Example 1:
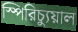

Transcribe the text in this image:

স্পিরিচ্যুয়াল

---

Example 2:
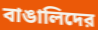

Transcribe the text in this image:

বাঙালিদের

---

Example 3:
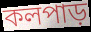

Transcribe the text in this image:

কলপাড়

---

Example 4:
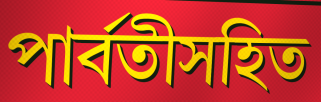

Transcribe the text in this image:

পার্বতীসহিত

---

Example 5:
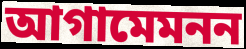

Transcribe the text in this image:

আগামেমনন